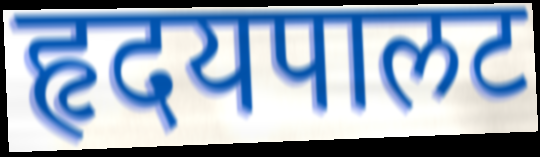
हृदयपालट